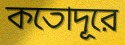
কতোদূরে